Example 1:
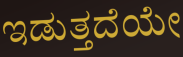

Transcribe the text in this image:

ಇಡುತ್ತದೆಯೇ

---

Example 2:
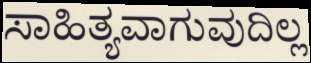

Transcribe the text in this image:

ಸಾಹಿತ್ಯವಾಗುವುದಿಲ್ಲ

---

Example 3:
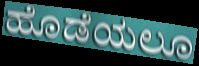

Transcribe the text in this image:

ಹೊಡೆಯಲೂ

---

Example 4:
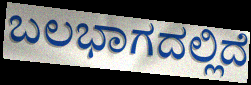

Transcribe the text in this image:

ಬಲಭಾಗದಲ್ಲಿದೆ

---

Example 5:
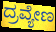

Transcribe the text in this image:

ದ್ರವ್ಯೇಣ